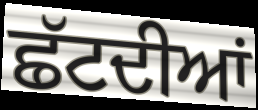
ਛੱਟਦੀਆਂ